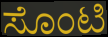
ಸೊಂಟಿ